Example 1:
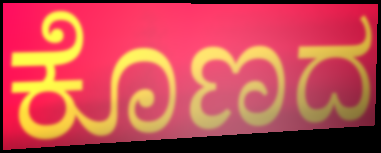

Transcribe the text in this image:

ಕೊಣದ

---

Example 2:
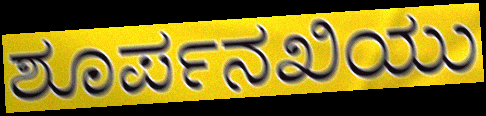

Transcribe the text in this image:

ಶೂರ್ಪನಖಿಯು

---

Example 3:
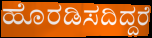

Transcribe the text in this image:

ಹೊರಡಿಸದಿದ್ದರೆ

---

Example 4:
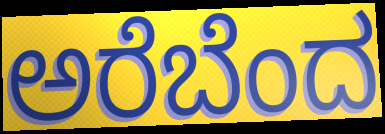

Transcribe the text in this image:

ಅರೆಬೆಂದ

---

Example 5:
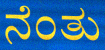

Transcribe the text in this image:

ನೆಂತು